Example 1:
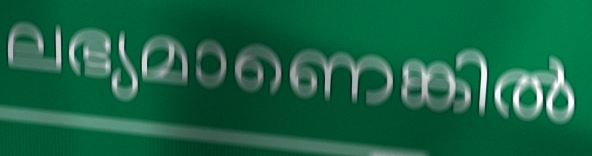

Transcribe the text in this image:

ലഭ്യമാണെങ്കിൽ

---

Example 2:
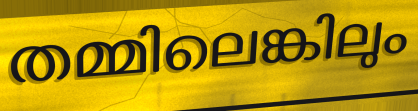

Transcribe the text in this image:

തമ്മിലെങ്കിലും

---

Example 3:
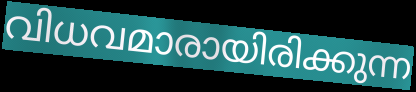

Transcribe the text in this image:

വിധവമാരായിരിക്കുന്ന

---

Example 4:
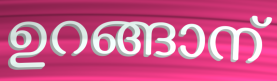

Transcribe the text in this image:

ഉറങ്ങാന്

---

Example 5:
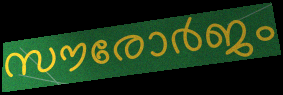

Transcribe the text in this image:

സൗരോർജം